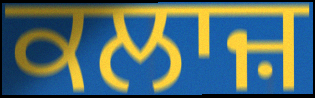
ਕਲਾਜ਼